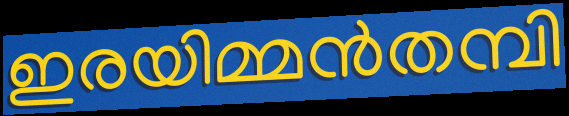
ഇരയിമ്മൻതമ്പി